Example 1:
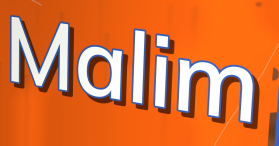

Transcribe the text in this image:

Malim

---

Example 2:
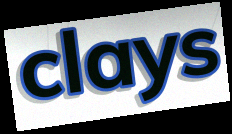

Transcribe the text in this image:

clays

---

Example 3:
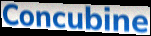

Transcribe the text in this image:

Concubine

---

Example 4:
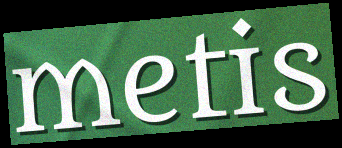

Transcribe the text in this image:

metis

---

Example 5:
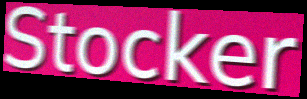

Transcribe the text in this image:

Stocker